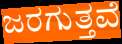
ಜರಗುತ್ತವೆ